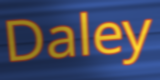
Daley